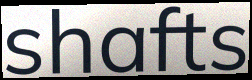
shafts